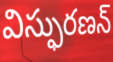
విస్ఫురణన్